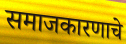
समाजकारणाचे